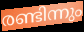
രണ്ടിന്നും